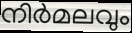
നിർമലവും